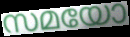
സമയോ